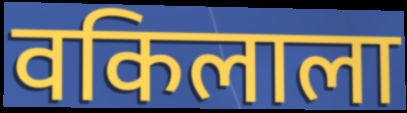
वकिलाला